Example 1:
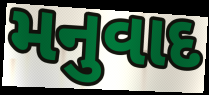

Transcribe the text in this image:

મનુવાદ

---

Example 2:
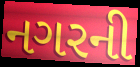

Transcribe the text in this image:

નગરની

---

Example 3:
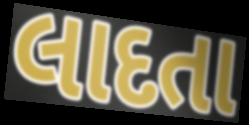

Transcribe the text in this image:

લાદતા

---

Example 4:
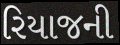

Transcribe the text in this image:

રિયાજની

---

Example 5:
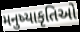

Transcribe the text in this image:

મનુષ્યાકૃતિઓ